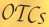
OTCs